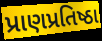
પ્રાણપ્રતિષ્ઠા